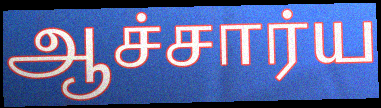
ஆச்சார்ய